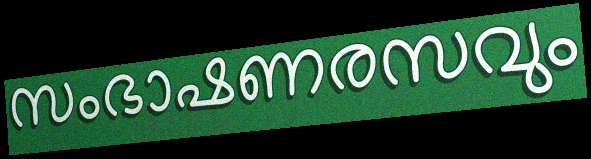
സംഭാഷണരസവും